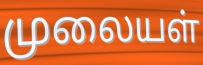
முலையள்